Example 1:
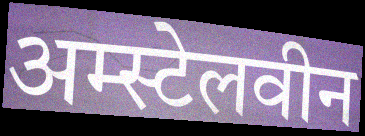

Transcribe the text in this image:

अम्स्टेलवीन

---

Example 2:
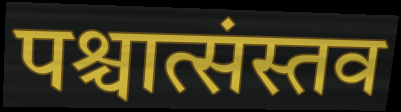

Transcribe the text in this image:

पश्चात्संस्तव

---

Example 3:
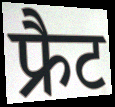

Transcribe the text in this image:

फ्रैट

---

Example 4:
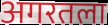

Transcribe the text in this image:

अगरतला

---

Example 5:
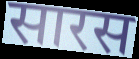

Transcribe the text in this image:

सारस